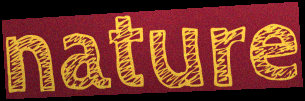
nature